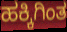
ಹಕ್ಕಿಗಿಂತ